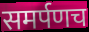
समर्पणच